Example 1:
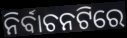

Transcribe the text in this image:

ନିର୍ବାଚନଟିରେ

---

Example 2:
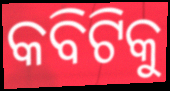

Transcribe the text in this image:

କବିଟିକୁ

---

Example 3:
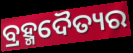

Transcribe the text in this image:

ବ୍ରହ୍ମଦୈତ୍ୟର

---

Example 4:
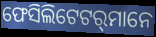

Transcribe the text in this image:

ଫେସିଲିଟେଟର୍‌ମାନେ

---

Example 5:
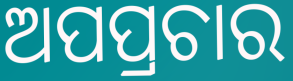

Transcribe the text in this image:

ଅପପ୍ରଚାର